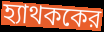
হ্যাথককের